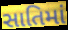
સાતિમાં